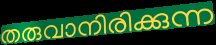
തരുവാനിരിക്കുന്ന